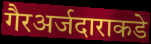
गैरअर्जदाराकडे